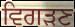
ਵਿਗੜਣ